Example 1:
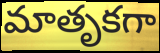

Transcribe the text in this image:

మాతృకగా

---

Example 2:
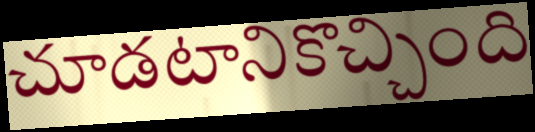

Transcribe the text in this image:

చూడటానికొచ్చింది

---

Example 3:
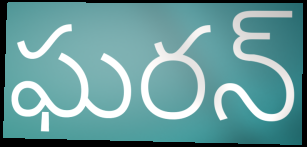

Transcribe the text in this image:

ఘరన్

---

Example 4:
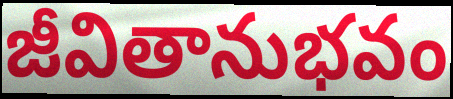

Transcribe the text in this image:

జీవితానుభవం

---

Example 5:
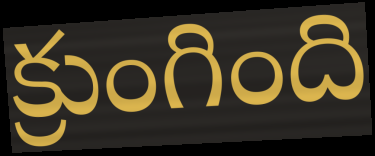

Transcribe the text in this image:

క్రుంగింది